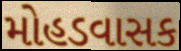
મોહડવાસક